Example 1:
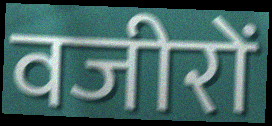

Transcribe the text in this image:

वजीरों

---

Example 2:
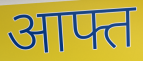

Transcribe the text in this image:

आफ्त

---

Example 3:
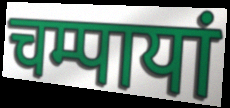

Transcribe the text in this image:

चम्पायां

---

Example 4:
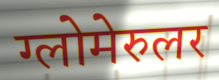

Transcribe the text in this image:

ग्लोमेरुलर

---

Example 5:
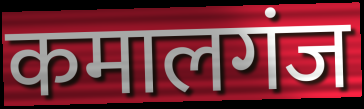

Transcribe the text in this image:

कमालगंज